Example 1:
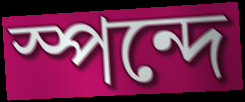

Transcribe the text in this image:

স্পন্দে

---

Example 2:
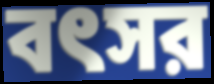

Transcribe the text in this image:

বৎসর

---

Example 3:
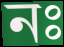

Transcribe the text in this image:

নঃ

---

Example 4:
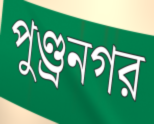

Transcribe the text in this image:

পুণ্ড্রনগর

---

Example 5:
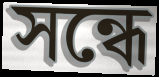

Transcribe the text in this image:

সন্ধে